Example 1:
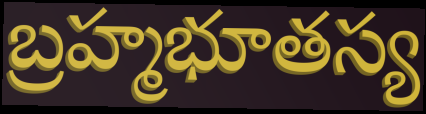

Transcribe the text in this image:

బ్రహ్మభూతస్య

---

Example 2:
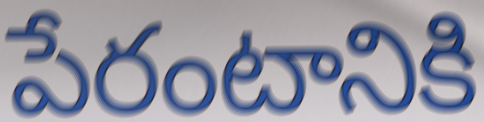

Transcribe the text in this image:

పేరంటానికి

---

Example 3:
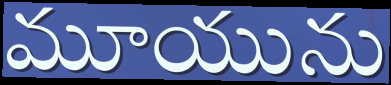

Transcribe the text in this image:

మూయును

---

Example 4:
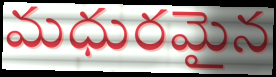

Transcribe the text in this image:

మధురమైన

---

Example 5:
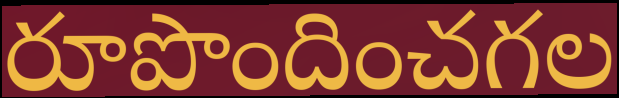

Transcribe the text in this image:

రూపొందించగల